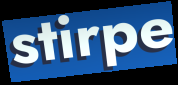
stirpe